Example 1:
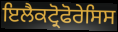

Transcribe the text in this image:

ਇਲੈਕਟ੍ਰੋਫੋਰੇਸਿਸ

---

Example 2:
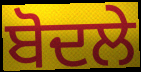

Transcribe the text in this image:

ਬੋਦਲੇ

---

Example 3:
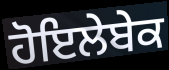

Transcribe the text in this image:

ਹੋਇਲੇਬੇਕ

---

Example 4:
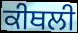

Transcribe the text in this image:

ਕੀਥਲੀ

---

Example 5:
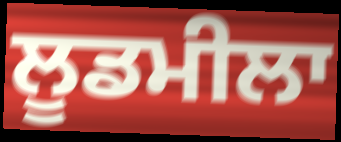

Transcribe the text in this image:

ਲੂਡਮੀਲਾ